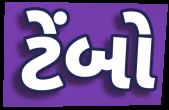
ટેંબો